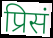
प्रिसं